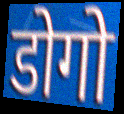
डोगो